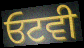
ਓਟਵੀ